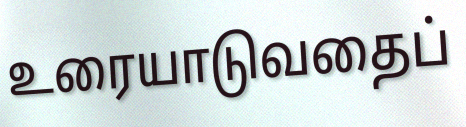
உரையாடுவதைப்